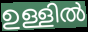
ഉള്ളിൽ